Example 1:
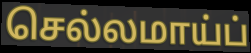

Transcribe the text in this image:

செல்லமாய்ப்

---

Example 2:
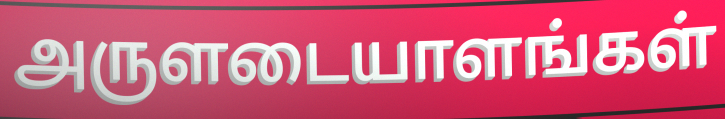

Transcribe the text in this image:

அருளடையாளங்கள்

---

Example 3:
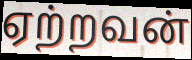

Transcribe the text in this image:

ஏற்றவன்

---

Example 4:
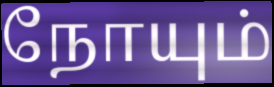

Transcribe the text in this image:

நோயும்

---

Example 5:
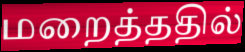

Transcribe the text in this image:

மறைத்ததில்